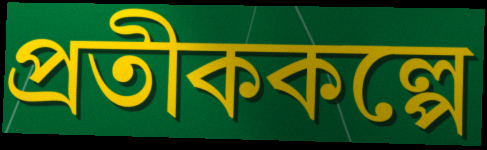
প্রতীককল্পে